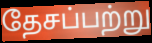
தேசப்பற்று